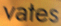
vates